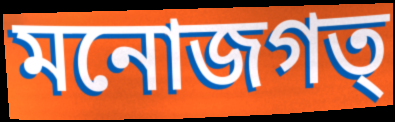
মনোজগত্